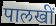
पालखीं